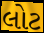
લોટ